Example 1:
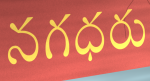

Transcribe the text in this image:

నగధరు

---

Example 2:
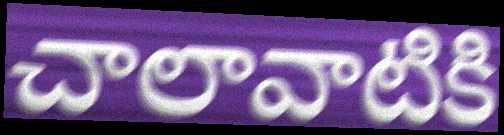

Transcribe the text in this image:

చాలావాటికి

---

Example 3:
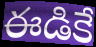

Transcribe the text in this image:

ఈడికే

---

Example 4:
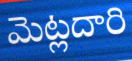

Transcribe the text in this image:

మెట్లదారి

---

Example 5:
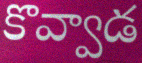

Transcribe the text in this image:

కొవ్వాడ